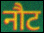
नौट